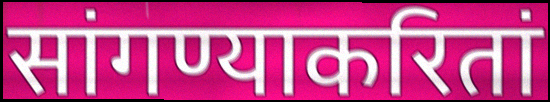
सांगण्याकरितां